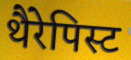
थैरेपिस्ट